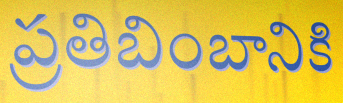
ప్రతిబింబానికి